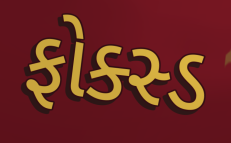
ફોક્સ્ડ